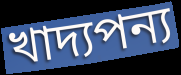
খাদ্যপন্য